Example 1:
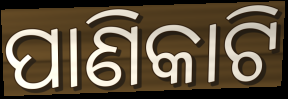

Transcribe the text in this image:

ପାଣିକାଟି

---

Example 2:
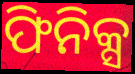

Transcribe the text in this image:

ଫିନିକ୍ସ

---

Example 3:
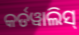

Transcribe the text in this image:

କର୍ଡୱାଲିସ୍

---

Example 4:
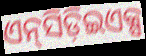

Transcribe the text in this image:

ଏନ୍‍ସିଡ଼ିଇଏକ୍ସ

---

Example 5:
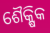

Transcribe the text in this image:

ଶୈକ୍ଷିକ